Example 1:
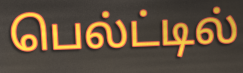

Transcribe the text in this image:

பெல்ட்டில்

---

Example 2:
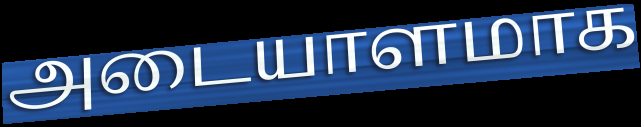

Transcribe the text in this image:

அடையாளமாக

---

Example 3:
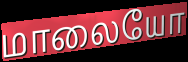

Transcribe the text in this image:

மாலையோ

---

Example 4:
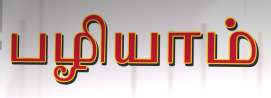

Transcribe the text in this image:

பழியாம்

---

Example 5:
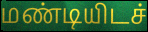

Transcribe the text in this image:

மண்டியிடச்